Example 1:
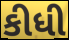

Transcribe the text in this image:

કીધી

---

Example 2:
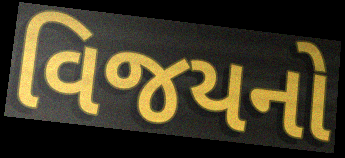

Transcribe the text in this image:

વિજયનો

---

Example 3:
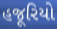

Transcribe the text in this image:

હજૂરિયો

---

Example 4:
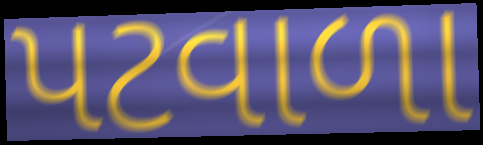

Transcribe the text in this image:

પટવાળા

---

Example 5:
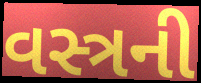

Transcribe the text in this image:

વસ્ત્રની